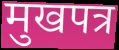
मुखपत्र